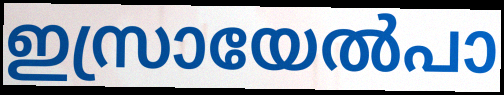
ഇസ്രായേൽപാ